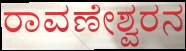
ರಾವಣೇಶ್ವರನ